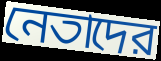
নেতাদের